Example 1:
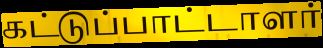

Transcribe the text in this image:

கட்டுப்பாட்டாளர்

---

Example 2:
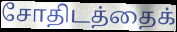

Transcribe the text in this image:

சோதிடத்தைக்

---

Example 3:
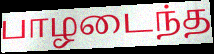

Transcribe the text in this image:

பாழடைந்த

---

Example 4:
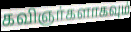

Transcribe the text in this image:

கவிஞர்களாகவும்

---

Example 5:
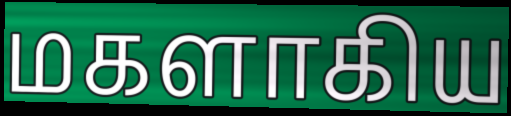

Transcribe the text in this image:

மகளாகிய